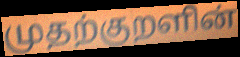
முதற்குறளின்